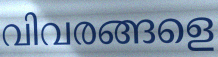
വിവരങ്ങളെ